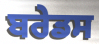
ਬਰੇਡਸ